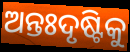
ଅନ୍ତଃଦୃଷ୍ଟିକୁ